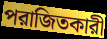
পরাজিতকারী